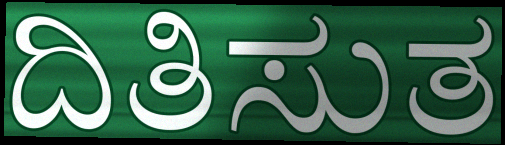
ದಿತಿಸುತ